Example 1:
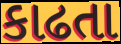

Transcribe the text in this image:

કાઢતા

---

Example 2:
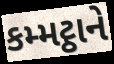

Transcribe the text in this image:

કમ્મટ્ઠાને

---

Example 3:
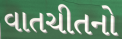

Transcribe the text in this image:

વાતચીતનો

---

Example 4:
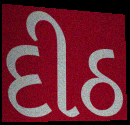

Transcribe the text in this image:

દીઠ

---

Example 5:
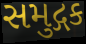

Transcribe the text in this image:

સમુદ્ગક